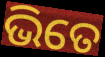
ଭିତେ